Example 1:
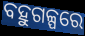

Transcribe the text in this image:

ବହୁଗଳ୍ପରେ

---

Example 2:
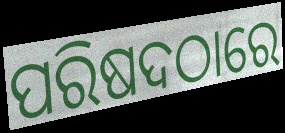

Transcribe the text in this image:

ପରିଷଦଠାରେ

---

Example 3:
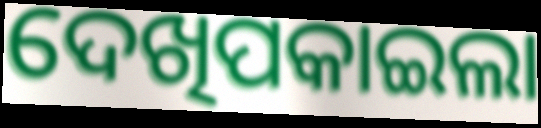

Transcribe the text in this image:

ଦେଖିପକାଇଲା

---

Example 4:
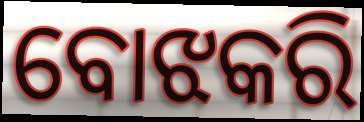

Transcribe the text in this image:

ବୋଝକରି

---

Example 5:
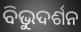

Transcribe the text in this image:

ବିଭୁଦର୍ଶନ